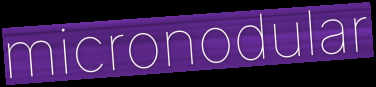
micronodular